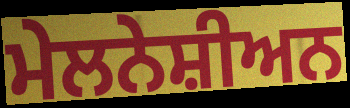
ਮੇਲਨੇਸ਼ੀਅਨ